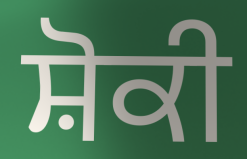
ਸ਼ੋਕੀ